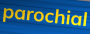
parochial